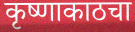
कृष्णाकाठचा